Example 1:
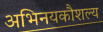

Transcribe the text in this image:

अभिनयकौशल्य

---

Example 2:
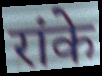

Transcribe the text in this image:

रांके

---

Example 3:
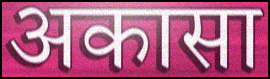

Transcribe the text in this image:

अकासा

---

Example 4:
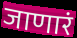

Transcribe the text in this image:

जाणारं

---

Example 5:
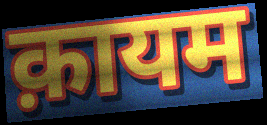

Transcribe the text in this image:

क़ायम